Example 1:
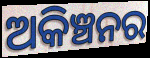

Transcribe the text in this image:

ଅକିଞ୍ଚନର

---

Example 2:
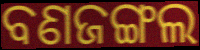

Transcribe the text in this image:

ବଣଜଙ୍ଗଲ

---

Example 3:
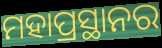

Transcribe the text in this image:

ମହାପ୍ରସ୍ଥାନର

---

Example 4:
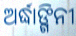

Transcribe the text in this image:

ଅର୍ଦ୍ଧାଙ୍ଗିନୀ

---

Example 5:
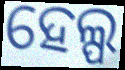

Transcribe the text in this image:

ହେଲ୍ପ